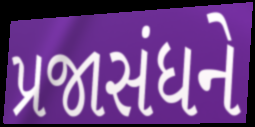
પ્રજાસંધને